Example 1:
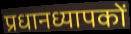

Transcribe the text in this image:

प्रधानध्यापकों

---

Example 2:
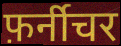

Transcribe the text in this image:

फ़र्नीचर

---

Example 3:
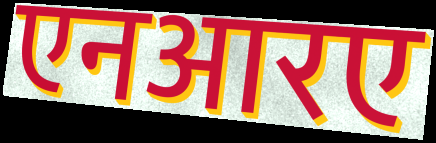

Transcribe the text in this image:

एनआरए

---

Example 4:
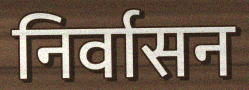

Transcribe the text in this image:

निर्वासन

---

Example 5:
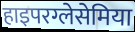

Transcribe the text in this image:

हाइपरग्लेसेमिया